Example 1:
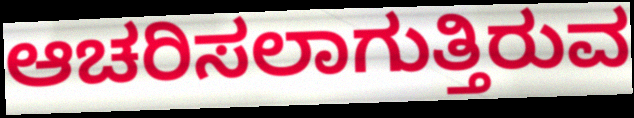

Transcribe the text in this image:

ಆಚರಿಸಲಾಗುತ್ತಿರುವ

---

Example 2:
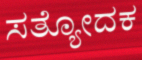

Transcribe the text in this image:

ಸತ್ಯೋದಕ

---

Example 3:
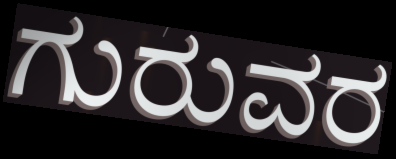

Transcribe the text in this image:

ಗುರುವರ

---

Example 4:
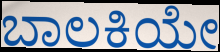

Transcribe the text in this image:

ಬಾಲಕಿಯೇ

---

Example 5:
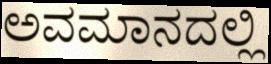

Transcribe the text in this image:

ಅವಮಾನದಲ್ಲಿ